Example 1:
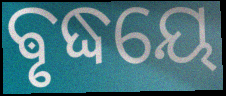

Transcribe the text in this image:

ଵୃଦ୍ଧୟେ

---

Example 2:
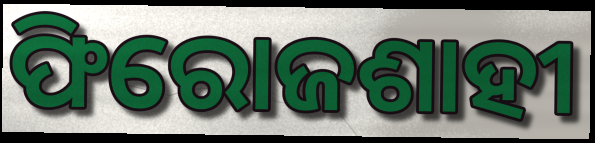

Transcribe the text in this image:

ଫିରୋଜଶାହୀ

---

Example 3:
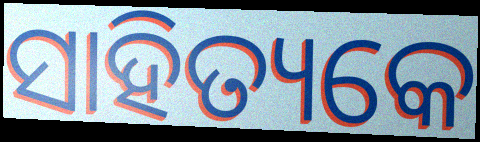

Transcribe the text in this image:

ସାହିତ୍ୟକେ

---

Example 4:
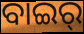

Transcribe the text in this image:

ବାଇର୍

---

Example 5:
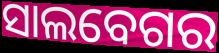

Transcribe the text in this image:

ସାଲବେଗର